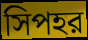
সিপহর